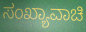
ಸಂಖ್ಯಾವಾಚಿ